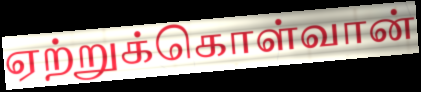
ஏற்றுக்கொள்வான்